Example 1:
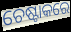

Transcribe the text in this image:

ଚେଷ୍ଟାକରେ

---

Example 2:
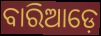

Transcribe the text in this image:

ବାରିଆଡ଼େ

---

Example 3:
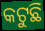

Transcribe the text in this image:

କଟୁଛି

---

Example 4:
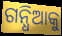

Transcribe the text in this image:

ଗନ୍ଧିଆକୁ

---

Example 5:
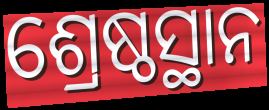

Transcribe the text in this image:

ଶ୍ରେଷ୍ଠସ୍ଥାନ